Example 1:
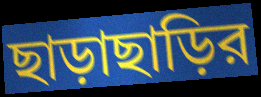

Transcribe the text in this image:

ছাড়াছাড়ির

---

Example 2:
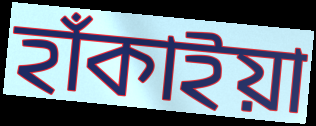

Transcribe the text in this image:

হাঁকাইয়া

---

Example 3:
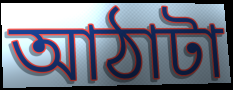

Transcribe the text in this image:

আঠাটা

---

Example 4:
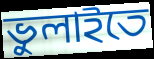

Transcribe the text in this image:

ভুলাইতে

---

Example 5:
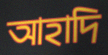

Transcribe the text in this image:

আহাদি